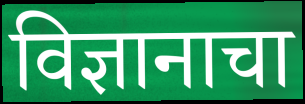
विज्ञानाचा